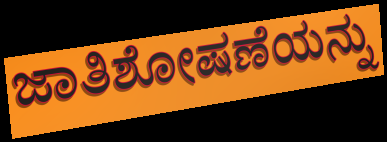
ಜಾತಿಶೋಷಣೆಯನ್ನು